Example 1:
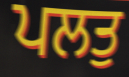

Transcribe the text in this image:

ਪਲਤੁ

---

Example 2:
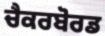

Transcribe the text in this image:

ਚੈਕਰਬੋਰਡ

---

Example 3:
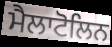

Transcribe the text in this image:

ਮੈਲਾਟੋਲਿਨ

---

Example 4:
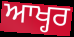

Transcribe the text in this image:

ਆਖ੍ਹਰ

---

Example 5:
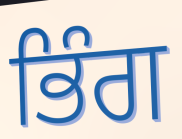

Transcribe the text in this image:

ਭਿੰਗ